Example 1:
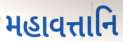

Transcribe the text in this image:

મહાવત્તાનિ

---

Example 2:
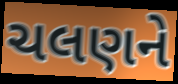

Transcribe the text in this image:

ચલણને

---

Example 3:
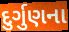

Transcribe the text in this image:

દુર્ગુણના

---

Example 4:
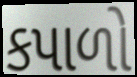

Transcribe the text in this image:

કપાળો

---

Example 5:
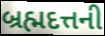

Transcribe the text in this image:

બ્રહ્મદત્તની